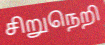
சிறுநெறி